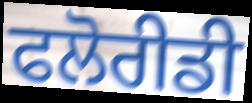
ਫਲੋਰੀਡੀ